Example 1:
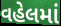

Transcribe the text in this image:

વહેલમાં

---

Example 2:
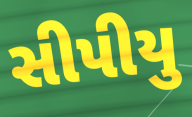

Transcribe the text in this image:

સીપીયુ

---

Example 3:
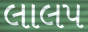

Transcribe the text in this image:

લાલપ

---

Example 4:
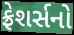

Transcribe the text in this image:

ફ્રેશર્સનો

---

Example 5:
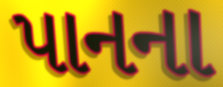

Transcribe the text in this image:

પાનના